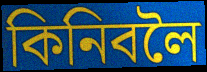
কিনিবলৈ